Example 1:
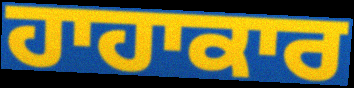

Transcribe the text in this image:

ਹਾਹਾਕਾਰ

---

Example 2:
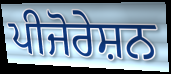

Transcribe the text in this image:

ਪੀਜੋਰੇਸ਼ਨ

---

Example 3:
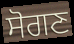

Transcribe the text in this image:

ਸੋਗਣ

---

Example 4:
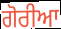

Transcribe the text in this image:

ਗੋਰੀਆ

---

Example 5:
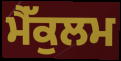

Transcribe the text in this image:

ਮੈੱਕੁਲਮ